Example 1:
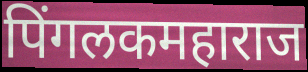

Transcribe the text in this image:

पिंगलकमहाराज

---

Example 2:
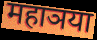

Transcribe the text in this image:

महाञया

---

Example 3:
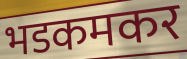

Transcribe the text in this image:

भडकमकर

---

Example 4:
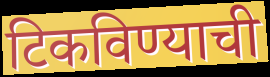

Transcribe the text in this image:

टिकविण्याची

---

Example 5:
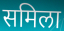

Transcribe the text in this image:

समिला